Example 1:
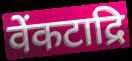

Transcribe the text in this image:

वेंकटाद्रि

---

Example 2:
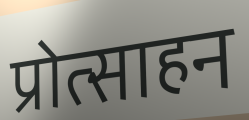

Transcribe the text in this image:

प्रोत्‍साहन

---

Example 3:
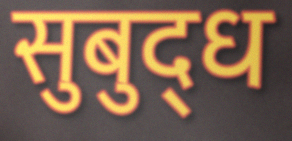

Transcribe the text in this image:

सुबुद्ध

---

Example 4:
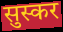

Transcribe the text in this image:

सुस्कर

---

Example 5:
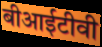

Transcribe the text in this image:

बीआईटीवी